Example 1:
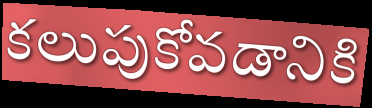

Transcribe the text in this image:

కలుపుకోవడానికి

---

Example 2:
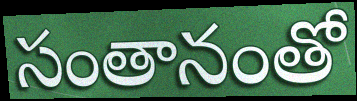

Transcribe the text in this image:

సంతానంతో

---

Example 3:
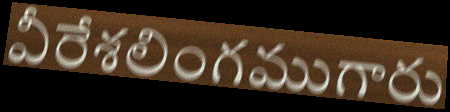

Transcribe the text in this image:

వీరేశలింగముగారు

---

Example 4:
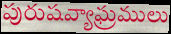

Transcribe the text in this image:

పురుషవ్యాఘ్రములు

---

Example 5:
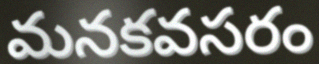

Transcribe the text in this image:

మనకవసరం